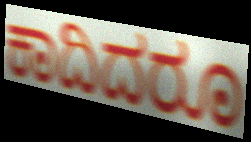
ಕಾದಿದರೂ